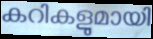
കറികളുമായി